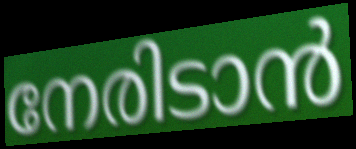
നേരിടാൻ